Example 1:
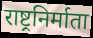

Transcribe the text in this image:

राष्ट्रनिर्माता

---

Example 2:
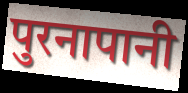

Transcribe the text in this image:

पुरनापानी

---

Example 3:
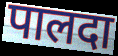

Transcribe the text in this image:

पालदा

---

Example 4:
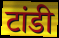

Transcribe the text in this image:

टांडी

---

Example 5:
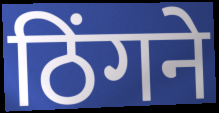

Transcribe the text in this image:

ठिंगने